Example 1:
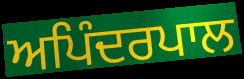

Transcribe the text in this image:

ਅਪਿੰਦਰਪਾਲ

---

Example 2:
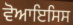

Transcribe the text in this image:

ਵੋਆਇਸਿਸ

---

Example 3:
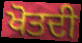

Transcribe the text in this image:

ਖੋਤਦੀ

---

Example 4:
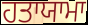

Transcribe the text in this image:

ਹਤਾਯਾਮਾ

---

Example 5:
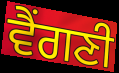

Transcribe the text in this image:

ਵੈਂਗਣੀ